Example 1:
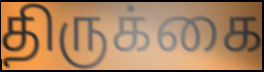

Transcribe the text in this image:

திருக்கை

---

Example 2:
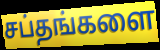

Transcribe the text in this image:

சப்தங்களை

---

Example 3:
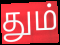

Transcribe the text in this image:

தும்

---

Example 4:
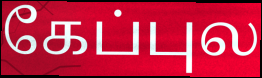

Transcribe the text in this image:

கேப்புல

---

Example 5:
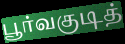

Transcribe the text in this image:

பூர்வகுடித்